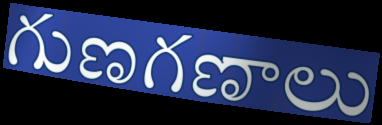
గుణగణాలు